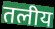
तलीय